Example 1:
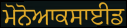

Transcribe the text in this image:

ਮੋਨੋਆਕਸਾਈਡ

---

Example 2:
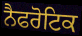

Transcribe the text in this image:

ਨੈਫਰੋਟਿਕ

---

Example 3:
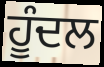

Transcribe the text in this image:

ਹੂੰਦਲ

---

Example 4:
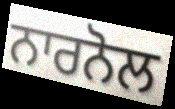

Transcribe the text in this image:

ਨਾਰਨੋਲ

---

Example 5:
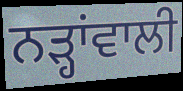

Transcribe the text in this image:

ਨੜ੍ਹਾਂਵਾਲੀ